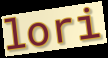
lori